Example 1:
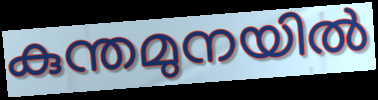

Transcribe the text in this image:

കുന്തമുനയിൽ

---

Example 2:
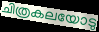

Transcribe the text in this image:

ചിത്രകലയോടു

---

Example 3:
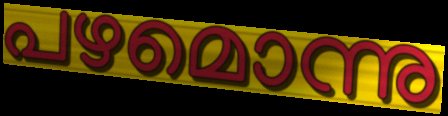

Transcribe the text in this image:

പഴമൊന്നു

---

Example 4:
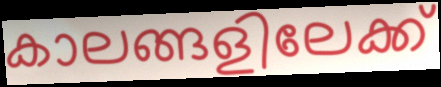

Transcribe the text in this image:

കാലങ്ങളിലേക്ക്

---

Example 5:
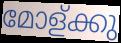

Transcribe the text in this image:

മോള്ക്കു